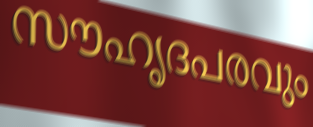
സൗഹൃദപരവും